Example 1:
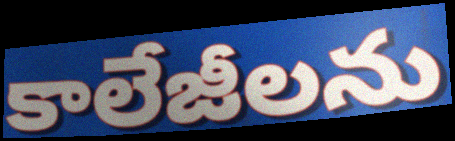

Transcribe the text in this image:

కాలేజీలను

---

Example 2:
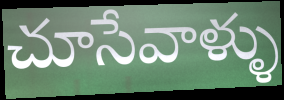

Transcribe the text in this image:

చూసేవాళ్ళు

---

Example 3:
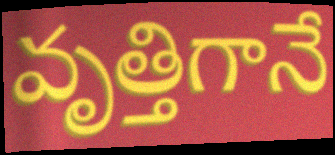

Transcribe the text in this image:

వృత్తిగానే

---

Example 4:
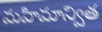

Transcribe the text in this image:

మహిమాన్విత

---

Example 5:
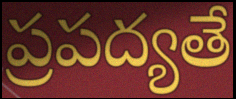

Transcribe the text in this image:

ప్రపద్యతే